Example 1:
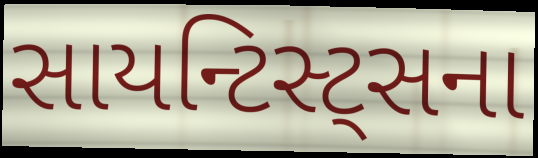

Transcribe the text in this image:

સાયન્ટિસ્ટ્સના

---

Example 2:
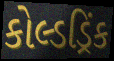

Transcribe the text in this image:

કોલ્ડડ્રિંક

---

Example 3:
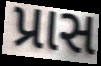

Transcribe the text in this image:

પ્રાસ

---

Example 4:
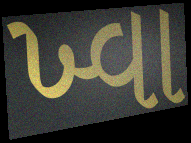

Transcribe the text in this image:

ખ્વા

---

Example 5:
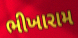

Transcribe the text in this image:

ભીખારામ